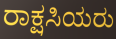
ರಾಕ್ಷಸಿಯರು